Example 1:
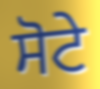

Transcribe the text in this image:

ਸੋਟੇ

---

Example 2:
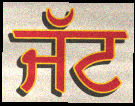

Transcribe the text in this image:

ਜੱਟ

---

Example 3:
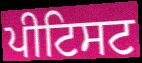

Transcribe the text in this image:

ਪੀਟਿਸਟ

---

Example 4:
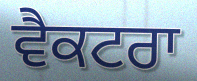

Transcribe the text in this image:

ਵੈਕਟਰਾ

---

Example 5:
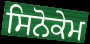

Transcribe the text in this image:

ਸਿਨੋਕੇਮ